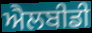
ਐਲਬੀਡੀ